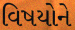
વિષયોને